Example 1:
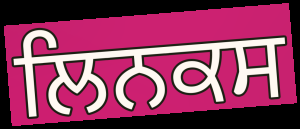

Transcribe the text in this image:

ਲਿਨਕਸ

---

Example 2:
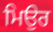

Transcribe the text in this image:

ਮਿਉਰ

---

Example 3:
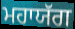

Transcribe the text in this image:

ਮਹਾਯੱਗ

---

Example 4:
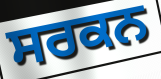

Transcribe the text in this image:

ਸਰਕਨ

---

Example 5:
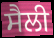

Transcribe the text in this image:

ਸੈਲੀ